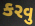
કરવુ